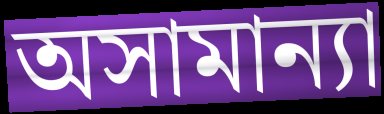
অসামান্যা